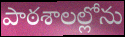
పాఠశాలల్లోను